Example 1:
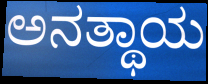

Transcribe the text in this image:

ಅನತ್ಥಾಯ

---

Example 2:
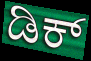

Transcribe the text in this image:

ಡಿಕ್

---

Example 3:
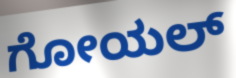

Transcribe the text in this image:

ಗೋಯಲ್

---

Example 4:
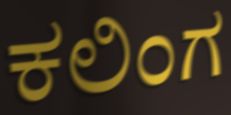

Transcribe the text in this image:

ಕಲಿಂಗ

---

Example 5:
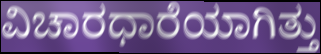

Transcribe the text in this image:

ವಿಚಾರಧಾರೆಯಾಗಿತ್ತು